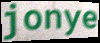
jonye